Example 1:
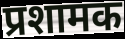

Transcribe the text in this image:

प्रशामक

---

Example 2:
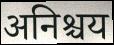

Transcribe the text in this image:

अनिश्चय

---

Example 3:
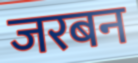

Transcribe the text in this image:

जरबन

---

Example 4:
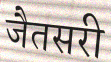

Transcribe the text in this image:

जैतसरी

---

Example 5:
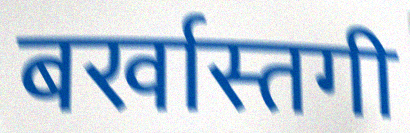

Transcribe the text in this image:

बर्खास्तगी